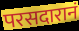
परसदारानं